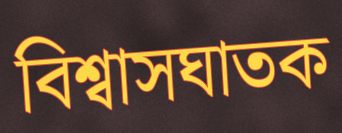
বিশ্বাসঘাতক